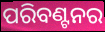
ପରିବଣ୍ଟନର